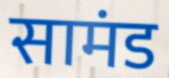
सामंड